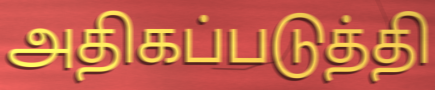
அதிகப்படுத்தி